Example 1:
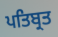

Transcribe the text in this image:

ਪਤਿਬ੍ਰਤ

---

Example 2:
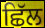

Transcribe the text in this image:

ਛਿੱਲ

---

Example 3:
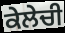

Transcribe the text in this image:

ਕੇਲੇਚੀ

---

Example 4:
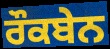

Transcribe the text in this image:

ਰੌਕਬੇਨ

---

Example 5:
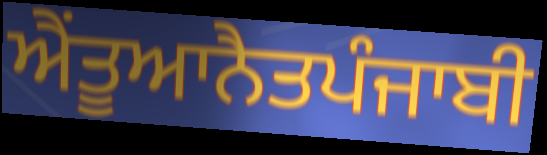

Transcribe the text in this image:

ਐਂਤੂਆਨੈਤਪੰਜਾਬੀ